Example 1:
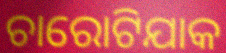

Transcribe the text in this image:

ଚାରୋଟିଯାକ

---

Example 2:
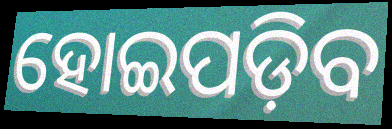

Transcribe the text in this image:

ହୋଇପଡ଼ିବ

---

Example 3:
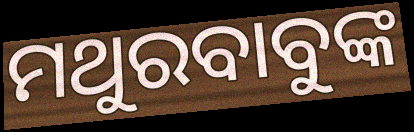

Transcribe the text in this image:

ମଥୁରବାବୁଙ୍କ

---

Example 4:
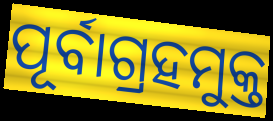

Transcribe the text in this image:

ପୂର୍ବାଗ୍ରହମୁକ୍ତ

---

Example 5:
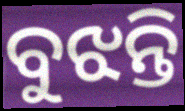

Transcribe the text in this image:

ବୁଝନ୍ତି